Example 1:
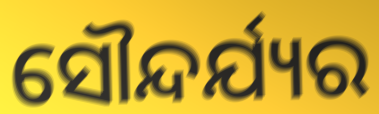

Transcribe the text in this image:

ସୌନ୍ଦର୍ଯ୍ୟର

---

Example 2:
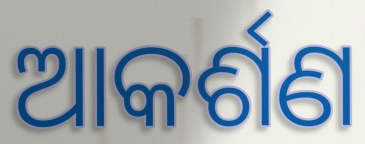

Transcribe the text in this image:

ଆକର୍ଶଣ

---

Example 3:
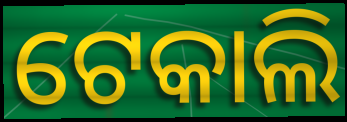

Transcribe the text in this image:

ଟେକାଲି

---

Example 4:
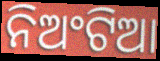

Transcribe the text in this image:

ନିଅଂଟିଆ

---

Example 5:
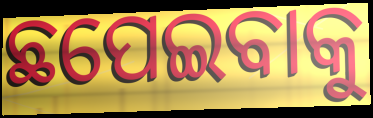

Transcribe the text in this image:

ଛପେଇବାକୁ